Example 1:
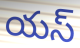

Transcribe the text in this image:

యస్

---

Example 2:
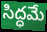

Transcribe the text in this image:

సిద్ధమే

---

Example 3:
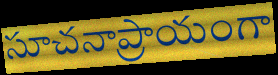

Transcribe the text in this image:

సూచనాప్రాయంగా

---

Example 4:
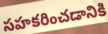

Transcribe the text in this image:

సహకరించడానికి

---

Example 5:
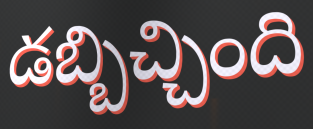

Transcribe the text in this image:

డబ్బిచ్చింది